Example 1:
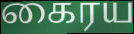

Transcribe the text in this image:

கைரய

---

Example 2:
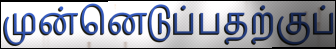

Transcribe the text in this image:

முன்னெடுப்பதற்குப்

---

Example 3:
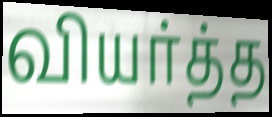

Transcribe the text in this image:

வியர்த்த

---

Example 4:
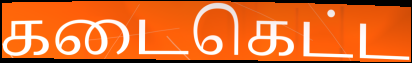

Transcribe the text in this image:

கடைகெட்ட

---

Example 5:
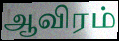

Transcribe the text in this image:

ஆவிரம்